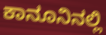
ಕಾನೂನಿನಲ್ಲಿ